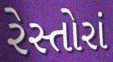
રેસ્તોરાં